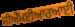
ਸੀਐੱਮਈਆਰਆਈ